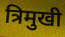
त्रिमुखी